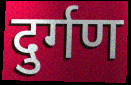
दुर्गण